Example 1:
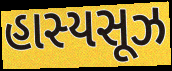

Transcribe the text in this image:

હાસ્યસૂઝ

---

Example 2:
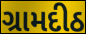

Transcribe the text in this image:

ગ્રામદીઠ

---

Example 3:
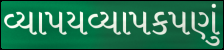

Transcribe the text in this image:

વ્યાપયવ્યાપકપણું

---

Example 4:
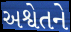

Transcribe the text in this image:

અશ્વેતને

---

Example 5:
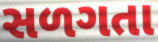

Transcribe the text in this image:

સળગતા